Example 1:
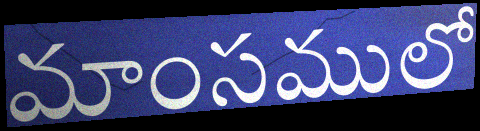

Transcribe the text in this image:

మాంసములో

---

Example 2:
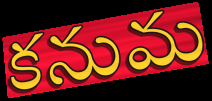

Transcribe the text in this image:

కనుమ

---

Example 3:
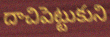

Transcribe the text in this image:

దాచిపెట్టుకుని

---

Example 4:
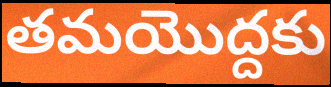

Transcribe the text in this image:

తమయొద్దకు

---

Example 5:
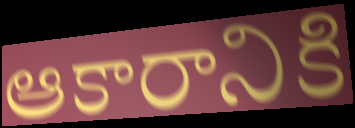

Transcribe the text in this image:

ఆకారానికి